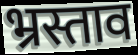
भ्रस्ताव